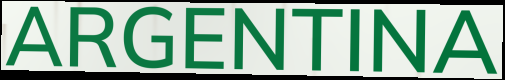
ARGENTINA